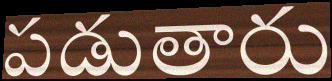
పడుతారు